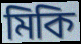
মিকি